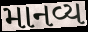
માનવ્ય